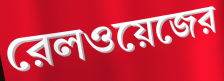
রেলওয়েজের